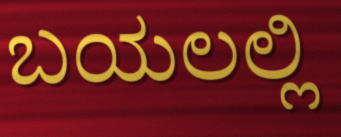
ಬಯಲಲ್ಲಿ